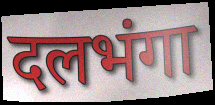
दलभंगा